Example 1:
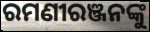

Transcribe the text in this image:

ରମଣୀରଞ୍ଜନଙ୍କୁ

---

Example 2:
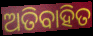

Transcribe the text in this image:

ଅତିବାହିତ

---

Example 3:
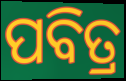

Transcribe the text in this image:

ପବିତ୍ର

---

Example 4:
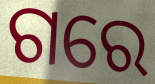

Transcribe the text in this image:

ଗରେ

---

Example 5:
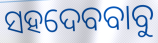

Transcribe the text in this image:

ସହଦେବବାବୁ